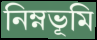
নিম্নভূমি